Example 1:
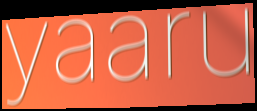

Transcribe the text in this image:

yaaru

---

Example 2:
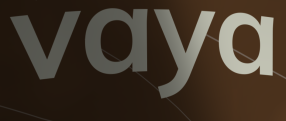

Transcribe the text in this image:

vaya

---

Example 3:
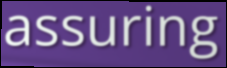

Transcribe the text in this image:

assuring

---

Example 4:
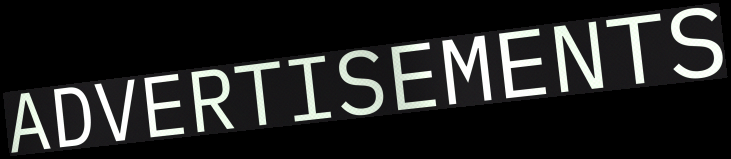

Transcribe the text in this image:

ADVERTISEMENTS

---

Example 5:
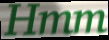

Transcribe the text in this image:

Hmm